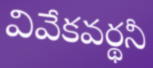
వివేకవర్థనీ